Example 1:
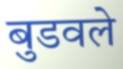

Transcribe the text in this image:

बुडवले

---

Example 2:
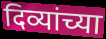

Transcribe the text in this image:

दिव्यांच्या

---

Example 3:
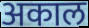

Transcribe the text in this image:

अकाल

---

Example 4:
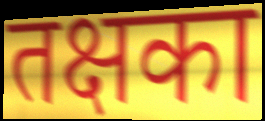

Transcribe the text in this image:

तक्षका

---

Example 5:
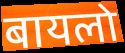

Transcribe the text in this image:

बायलो